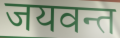
जयवन्त